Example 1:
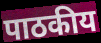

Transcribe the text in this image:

पाठकीय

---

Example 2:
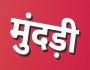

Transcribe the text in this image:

मुंदड़ी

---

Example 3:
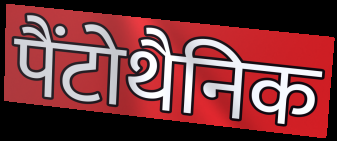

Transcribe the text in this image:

पैंटोथैनिक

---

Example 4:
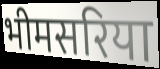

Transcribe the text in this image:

भीमसरिया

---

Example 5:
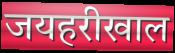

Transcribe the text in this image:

जयहरीखाल